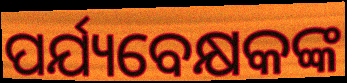
ପର୍ଯ୍ୟବେକ୍ଷକଙ୍କ